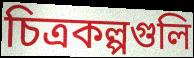
চিত্রকল্পগুলি